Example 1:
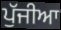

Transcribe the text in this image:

ਪੁੱਜੀਆ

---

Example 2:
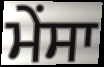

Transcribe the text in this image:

ਮੇਂਸਾ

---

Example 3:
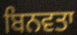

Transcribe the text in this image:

ਬਿਨਵਤਾ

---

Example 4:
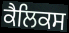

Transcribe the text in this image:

ਕੈਲਿਕਸ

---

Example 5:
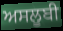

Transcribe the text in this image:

ਅਸਲੂਬੀ